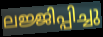
ലജ്ജിപ്പിച്ചു